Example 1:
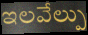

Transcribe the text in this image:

ఇలవేల్పు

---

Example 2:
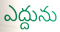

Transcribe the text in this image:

ఎద్దును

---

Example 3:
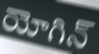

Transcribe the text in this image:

యోగిన్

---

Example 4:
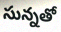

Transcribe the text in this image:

సున్నతో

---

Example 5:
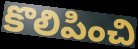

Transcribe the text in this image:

కొలిపించి